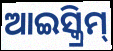
ଆଇସ୍କ୍ରିମ୍